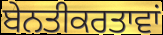
ਬੇਨਤੀਕਰਤਾਵਾਂ